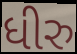
ધીરુ